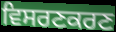
ਵਿਸਰਣਕਰਣ